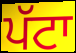
ਪੱਟਾ